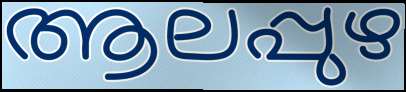
ആലപ്പുഴ